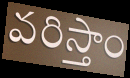
వరిస్తాం